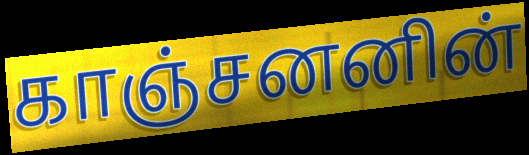
காஞ்சனனின்